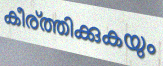
കീര്ത്തിക്കുകയും